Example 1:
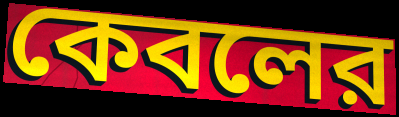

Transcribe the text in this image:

কেবলের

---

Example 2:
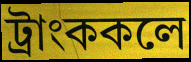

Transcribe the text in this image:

ট্রাংককলে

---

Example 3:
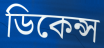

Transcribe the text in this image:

ডিকেন্স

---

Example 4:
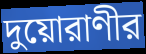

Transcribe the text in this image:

দুয়োরাণীর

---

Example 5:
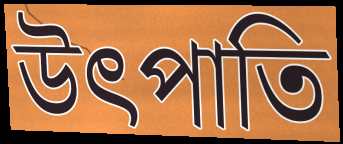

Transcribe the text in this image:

উৎপাতি